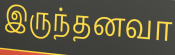
இருந்தனவா